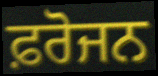
ਫ਼ਰੋਜਨ